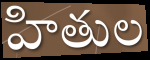
హితుల